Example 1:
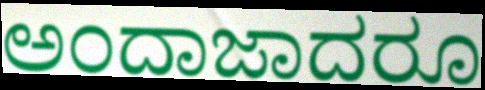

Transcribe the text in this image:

ಅಂದಾಜಾದರೂ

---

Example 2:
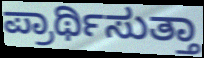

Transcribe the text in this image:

ಪ್ರಾರ್ಥಿಸುತ್ತಾ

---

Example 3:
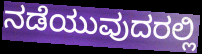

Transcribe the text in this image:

ನಡೆಯುವುದರಲ್ಲಿ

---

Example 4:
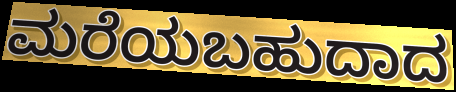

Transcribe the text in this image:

ಮರೆಯಬಹುದಾದ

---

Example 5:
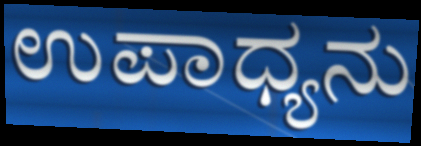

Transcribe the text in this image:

ಉಪಾಧ್ಯನು